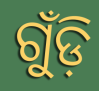
ଗୁଁଡ଼ି